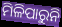
ମିଳିପାରୁନି